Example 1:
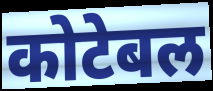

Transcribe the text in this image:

कोटेबल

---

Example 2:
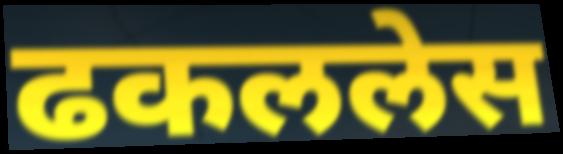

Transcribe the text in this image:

ढकललेस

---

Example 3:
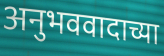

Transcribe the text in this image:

अनुभववादाच्या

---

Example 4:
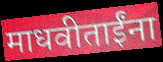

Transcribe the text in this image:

माधवीताईंना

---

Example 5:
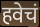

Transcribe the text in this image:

हवेचं